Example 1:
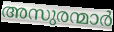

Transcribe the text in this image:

അസുരന്മാർ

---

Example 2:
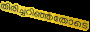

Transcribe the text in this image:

തിരിച്ചറിഞ്ഞതോടെ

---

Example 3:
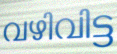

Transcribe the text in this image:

വഴിവിട്ട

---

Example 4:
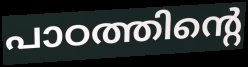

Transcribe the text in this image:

പാഠത്തിന്റെ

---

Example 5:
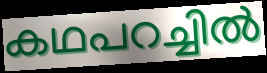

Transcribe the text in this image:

കഥപറച്ചിൽ